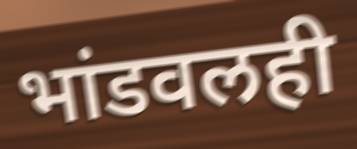
भांडवलही